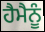
ਹੈਮੈਨੂੰ